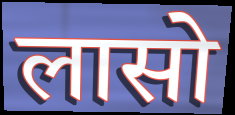
लासो